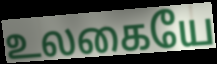
உலகையே